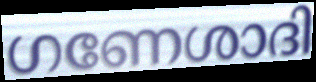
ഗണേശാദി